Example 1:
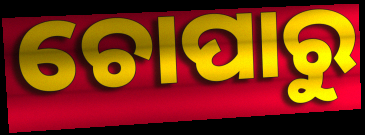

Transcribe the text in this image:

ଚୋପାରୁ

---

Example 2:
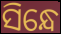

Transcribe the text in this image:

ସିନ୍ଧେ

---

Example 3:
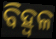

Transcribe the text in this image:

ବିହ୍ଵଳ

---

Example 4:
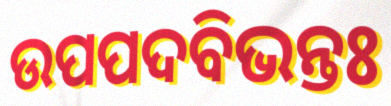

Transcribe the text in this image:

ଉପପଦବିଭନ୍ତଃ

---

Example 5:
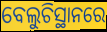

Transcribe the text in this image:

ବେଲୁଚିସ୍ଥାନରେ